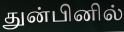
துன்பினில்